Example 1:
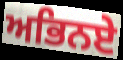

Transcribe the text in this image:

ਅਭਿਨਏ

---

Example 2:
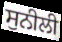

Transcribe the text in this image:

ਸੁਨੀਲੀ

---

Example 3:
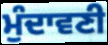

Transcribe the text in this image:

ਮੁੰਦਾਵਣੀ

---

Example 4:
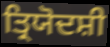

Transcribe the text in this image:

ਤ੍ਰਿਯੋਦਸ਼ੀ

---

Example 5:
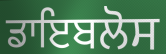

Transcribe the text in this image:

ਡਾਇਬਲੋਸ